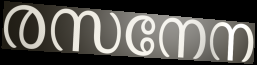
രസനേന